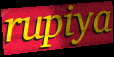
rupiya